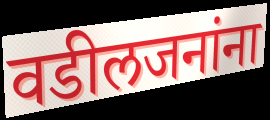
वडीलजनांना